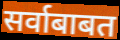
सर्वाबाबत